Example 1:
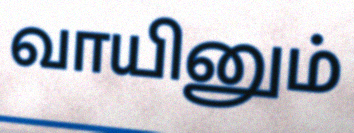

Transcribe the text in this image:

வாயினும்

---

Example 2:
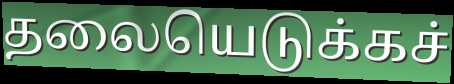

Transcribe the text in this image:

தலையெடுக்கச்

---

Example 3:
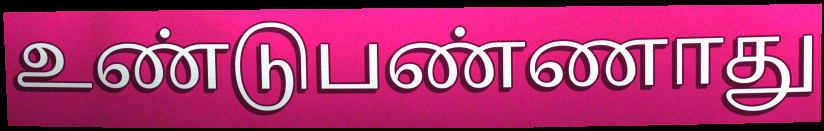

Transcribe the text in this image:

உண்டுபண்ணாது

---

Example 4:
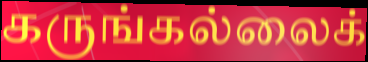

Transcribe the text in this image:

கருங்கல்லைக்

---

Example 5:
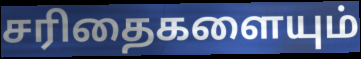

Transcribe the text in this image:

சரிதைகளையும்